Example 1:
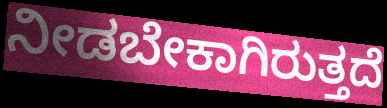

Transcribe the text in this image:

ನೀಡಬೇಕಾಗಿರುತ್ತದೆ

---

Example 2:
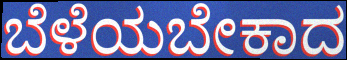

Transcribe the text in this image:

ಬೆಳೆಯಬೇಕಾದ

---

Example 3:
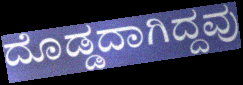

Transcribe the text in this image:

ದೊಡ್ಡದಾಗಿದ್ದವು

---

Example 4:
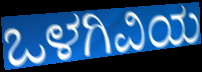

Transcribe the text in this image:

ಒಳಗಿವಿಯ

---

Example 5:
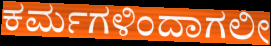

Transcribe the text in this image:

ಕರ್ಮಗಳಿಂದಾಗಲೀ